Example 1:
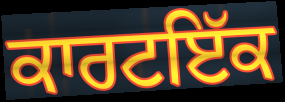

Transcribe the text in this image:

ਕਾਰਟਇੱਕ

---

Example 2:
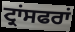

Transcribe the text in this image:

ਟ੍ਰਾਂਸਫਰਾਂ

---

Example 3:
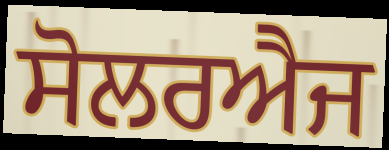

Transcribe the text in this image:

ਸੋਲਰਐਜ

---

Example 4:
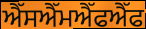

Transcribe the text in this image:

ਐੱਸਐੱਮਐੱਫਐੱਫ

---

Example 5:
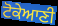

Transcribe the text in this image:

ਟੋਕੇਆਣੀ